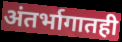
अंतर्भागातही